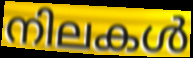
നിലകൾ